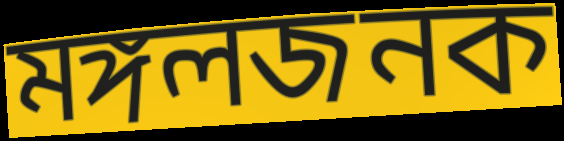
মঙ্গলজনক